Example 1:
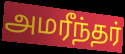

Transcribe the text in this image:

அமரீந்தர்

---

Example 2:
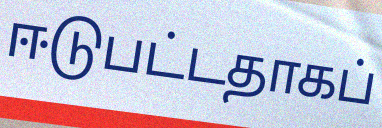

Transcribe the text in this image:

ஈடுபட்டதாகப்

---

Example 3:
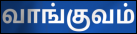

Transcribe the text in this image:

வாங்குவம்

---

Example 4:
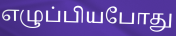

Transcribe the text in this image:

எழுப்பியபோது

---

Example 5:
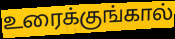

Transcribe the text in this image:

உரைக்குங்கால்